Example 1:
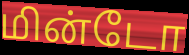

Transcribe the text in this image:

மின்டோ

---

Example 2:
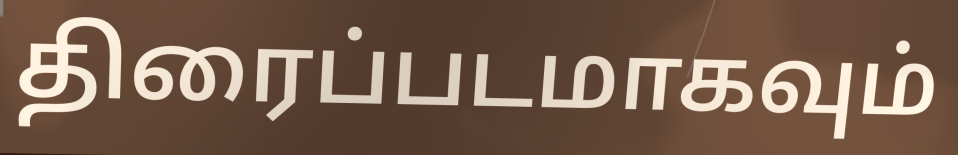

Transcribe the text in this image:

திரைப்படமாகவும்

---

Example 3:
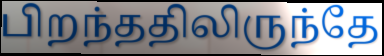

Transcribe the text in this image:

பிறந்ததிலிருந்தே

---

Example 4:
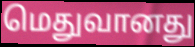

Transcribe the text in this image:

மெதுவானது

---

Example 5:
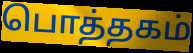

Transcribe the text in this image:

பொத்தகம்